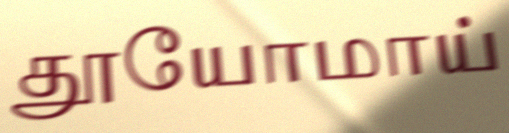
தூயோமாய்